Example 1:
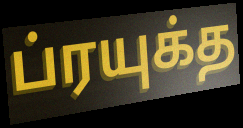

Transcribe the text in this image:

ப்ரயுக்த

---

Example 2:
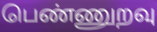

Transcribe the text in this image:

பெண்ணுறவு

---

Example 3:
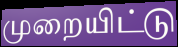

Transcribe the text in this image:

முறையிட்டு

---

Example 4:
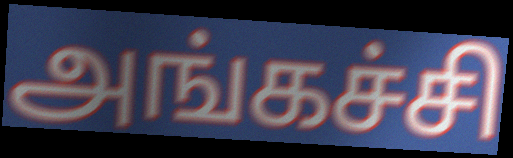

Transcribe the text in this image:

அங்கச்சி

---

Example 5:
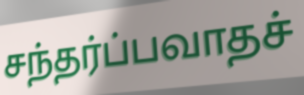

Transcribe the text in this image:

சந்தர்ப்பவாதச்